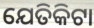
ଯେତିକିଟା